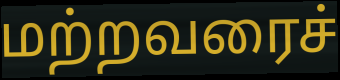
மற்றவரைச்